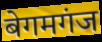
बेगमगंज